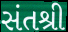
સંતશ્રી